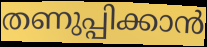
തണുപ്പിക്കാൻ